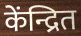
केंन्द्रित